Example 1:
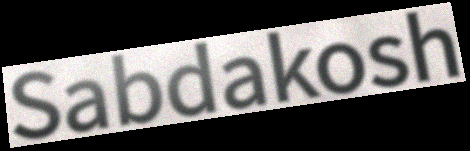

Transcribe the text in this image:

Sabdakosh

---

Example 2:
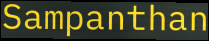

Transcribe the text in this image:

Sampanthan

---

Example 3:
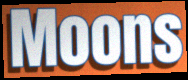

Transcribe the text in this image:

Moons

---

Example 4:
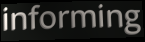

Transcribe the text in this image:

informing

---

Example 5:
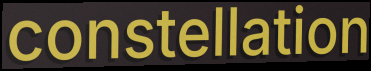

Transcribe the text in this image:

constellation